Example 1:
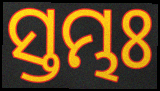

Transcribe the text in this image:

ସ୍ତମ୍ଭଃ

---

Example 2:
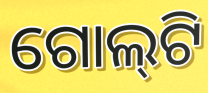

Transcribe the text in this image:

ଗୋଲ୍‍ଟି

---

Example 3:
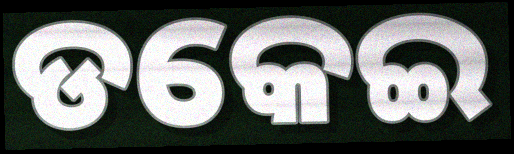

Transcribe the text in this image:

ଡକେଇ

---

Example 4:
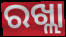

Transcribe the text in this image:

ରଖ୍ଲା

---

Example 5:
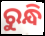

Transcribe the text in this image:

ରୁନ୍ଧି